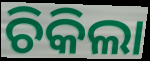
ଚିକିଲା